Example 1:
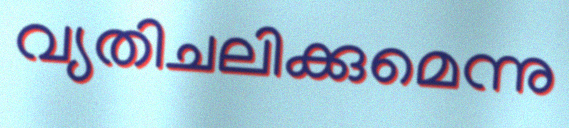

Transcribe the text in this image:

വ്യതിചലിക്കുമെന്നു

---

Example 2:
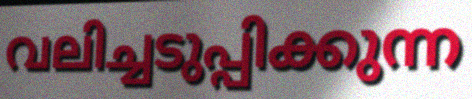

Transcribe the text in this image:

വലിച്ചടുപ്പിക്കുന്ന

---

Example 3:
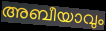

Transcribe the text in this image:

അബീയാവും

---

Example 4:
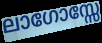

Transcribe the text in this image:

ലാഗോസ്സേ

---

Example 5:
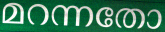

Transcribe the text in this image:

മറന്നതോ